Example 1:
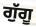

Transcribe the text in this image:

ਗੁੱਗੂ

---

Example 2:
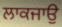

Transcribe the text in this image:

ਲਾਕਜਾਉ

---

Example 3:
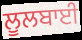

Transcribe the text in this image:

ਲੂਲਬਾਈ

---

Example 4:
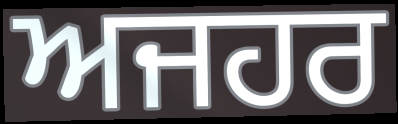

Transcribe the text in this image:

ਅਜਹਰ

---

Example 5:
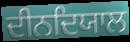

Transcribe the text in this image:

ਦੀਨਦਿਯਾਲ